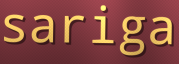
sariga